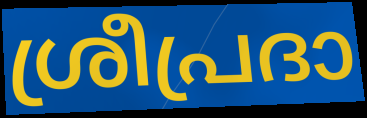
ശ്രീപ്രദാ